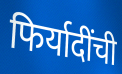
फिर्यादींची